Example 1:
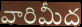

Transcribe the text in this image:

వారిమీద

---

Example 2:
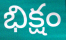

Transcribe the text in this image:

భిక్షం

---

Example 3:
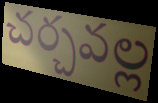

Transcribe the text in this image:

చర్చవల్ల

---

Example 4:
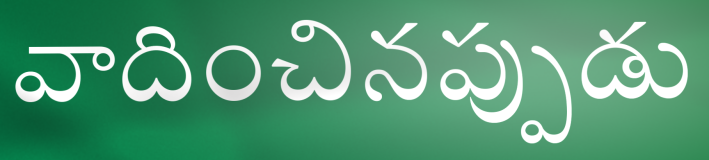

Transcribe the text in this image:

వాదించినప్పుడు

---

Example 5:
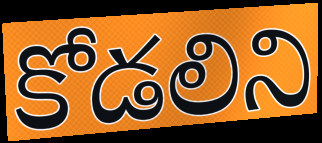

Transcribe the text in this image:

కోడలిని